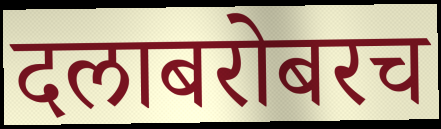
दलाबरोबरच